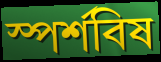
স্পর্শবিষ